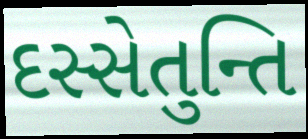
દસ્સેતુન્તિ